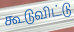
கூடுவிட்டு